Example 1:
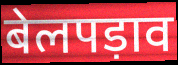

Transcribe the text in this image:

बेलपड़ाव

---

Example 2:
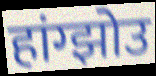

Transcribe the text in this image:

हांग्झोउ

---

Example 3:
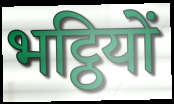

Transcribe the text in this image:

भट्ठियों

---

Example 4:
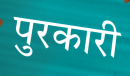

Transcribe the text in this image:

पुरकारी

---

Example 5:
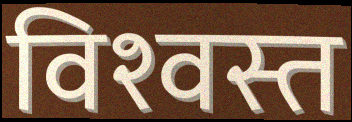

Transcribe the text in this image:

विश्वस्त